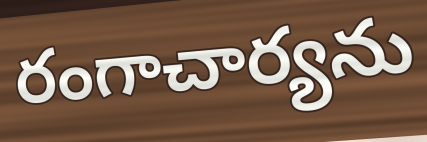
రంగాచార్యను